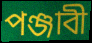
পঞ্জাবী